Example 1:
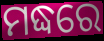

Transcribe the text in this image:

ମଦ୍ଧରେ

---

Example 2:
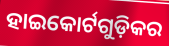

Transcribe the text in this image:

ହାଇକୋର୍ଟଗୁଡ଼ିକର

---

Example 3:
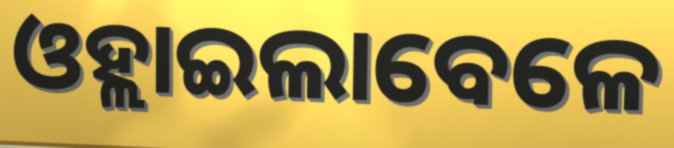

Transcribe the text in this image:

ଓହ୍ଲାଇଲାବେଳେ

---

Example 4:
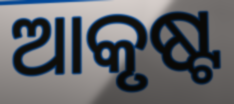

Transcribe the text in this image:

ଆକୃଷ୍ଟ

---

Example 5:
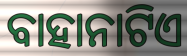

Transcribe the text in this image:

ବାହାନାଟିଏ